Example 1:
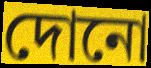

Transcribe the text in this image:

দোনো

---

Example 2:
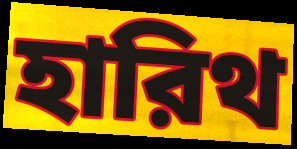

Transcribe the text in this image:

হারিথ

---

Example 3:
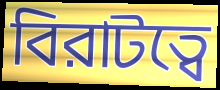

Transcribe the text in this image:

বিরাটত্বে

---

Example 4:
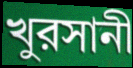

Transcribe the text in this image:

খুরসানী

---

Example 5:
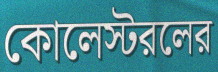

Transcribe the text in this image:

কোলেস্টরলের